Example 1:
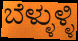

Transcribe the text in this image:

ಬೆಳ್ಳುಳ್ಳಿ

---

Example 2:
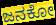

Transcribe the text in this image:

ಜನಕೋ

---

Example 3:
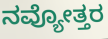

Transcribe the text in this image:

ನವ್ಯೋತ್ತರ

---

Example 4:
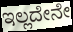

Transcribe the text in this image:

ಇಲ್ಲದೇನೇ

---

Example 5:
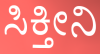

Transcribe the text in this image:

ಸಿಕ್ತೀನಿ